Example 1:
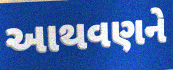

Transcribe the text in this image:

આથવણને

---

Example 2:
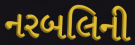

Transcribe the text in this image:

નરબલિની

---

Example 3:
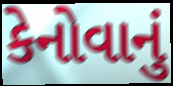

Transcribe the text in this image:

કેનોવાનું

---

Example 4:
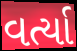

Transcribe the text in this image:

વર્ત્યા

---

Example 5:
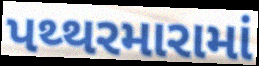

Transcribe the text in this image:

પથ્થરમારામાં